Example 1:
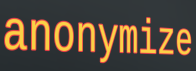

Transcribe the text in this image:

anonymize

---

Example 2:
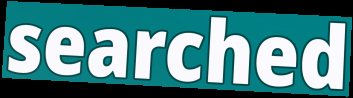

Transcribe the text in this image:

searched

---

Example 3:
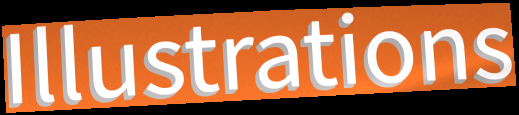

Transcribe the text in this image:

Illustrations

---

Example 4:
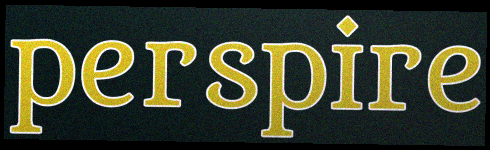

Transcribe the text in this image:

perspire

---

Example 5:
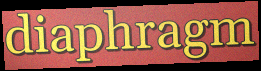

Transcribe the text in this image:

diaphragm